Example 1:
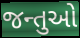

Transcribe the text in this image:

જન્તુઓ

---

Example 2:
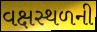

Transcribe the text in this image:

વક્ષસ્થળની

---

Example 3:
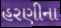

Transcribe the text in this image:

હરણીના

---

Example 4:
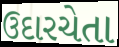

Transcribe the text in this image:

ઉદારચેતા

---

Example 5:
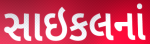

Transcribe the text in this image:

સાઇકલનાં